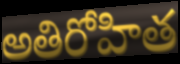
అతిరోహిత